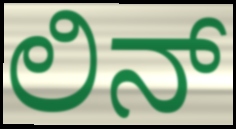
ಲಿನ್